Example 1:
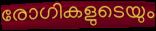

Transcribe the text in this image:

രോഗികളുടെയും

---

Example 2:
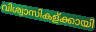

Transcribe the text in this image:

വിശ്വാസികള്ക്കായി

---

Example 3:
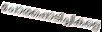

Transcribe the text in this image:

ചോരപ്പൊടിച്ചികളെ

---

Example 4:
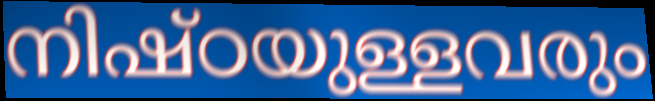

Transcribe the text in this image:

നിഷ്ഠയുള്ളവരും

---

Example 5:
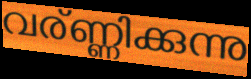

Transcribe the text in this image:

വര്ണ്ണിക്കുന്നു